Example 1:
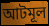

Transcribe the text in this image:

আটমূল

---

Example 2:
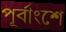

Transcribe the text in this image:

পূর্বাংশে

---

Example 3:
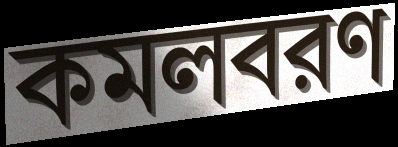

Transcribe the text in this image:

কমলবরণ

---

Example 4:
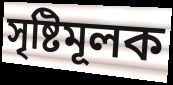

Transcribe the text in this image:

সৃষ্টিমূলক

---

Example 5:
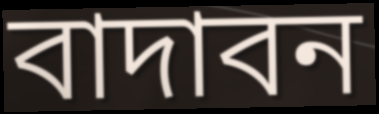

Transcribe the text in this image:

বাদাবন